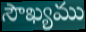
సౌఖ్యము